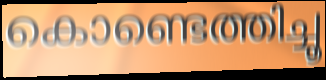
കൊണ്ടെത്തിച്ചൂ